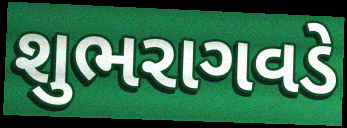
શુભરાગવડે